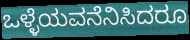
ಒಳ್ಳೆಯವನೆನಿಸಿದರೂ